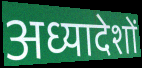
अध्यादेशों